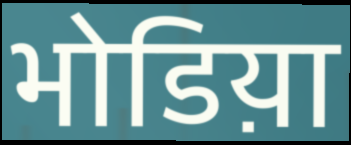
भोडिय़ा